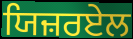
ਯਿਜ਼ਰਏਲ